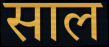
साल